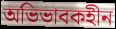
অভিভাবকহীন